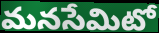
మనసేమిటో